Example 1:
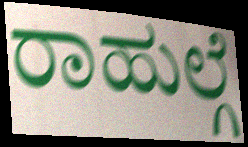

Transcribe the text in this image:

ರಾಹುಲ್ಗೆ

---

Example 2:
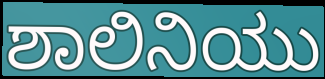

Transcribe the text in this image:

ಶಾಲಿನಿಯು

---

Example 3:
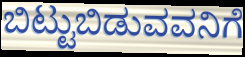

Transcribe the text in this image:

ಬಿಟ್ಟುಬಿಡುವವನಿಗೆ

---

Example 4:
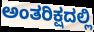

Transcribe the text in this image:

ಅಂತರಿಕ್ಷದಲ್ಲಿ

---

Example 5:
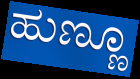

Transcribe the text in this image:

ಹುಣ್ಣೂ